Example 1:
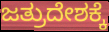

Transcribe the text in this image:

ಜತ್ರುದೇಶಕ್ಕೆ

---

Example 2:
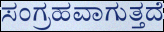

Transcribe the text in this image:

ಸಂಗ್ರಹವಾಗುತ್ತದೆ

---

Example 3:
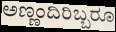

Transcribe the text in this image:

ಅಣ್ಣಂದಿರಿಬ್ಬರೂ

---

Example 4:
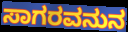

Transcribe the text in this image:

ಸಾಗರವನುನ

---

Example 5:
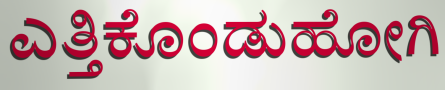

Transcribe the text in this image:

ಎತ್ತಿಕೊಂಡುಹೋಗಿ